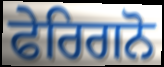
ਫੇਰਿਗਨੋ